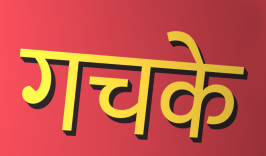
गचके